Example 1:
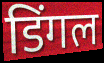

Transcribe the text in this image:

डिंगल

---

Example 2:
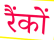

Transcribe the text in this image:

रैंकों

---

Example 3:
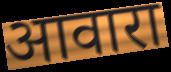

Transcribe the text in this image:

आवारा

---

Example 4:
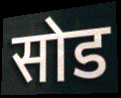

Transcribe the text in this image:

सोड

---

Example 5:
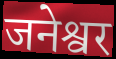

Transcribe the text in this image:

जनेश्वर